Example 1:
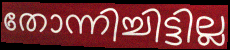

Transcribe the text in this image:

തോന്നിച്ചിട്ടില്ല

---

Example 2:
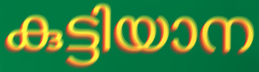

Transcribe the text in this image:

കുട്ടിയാന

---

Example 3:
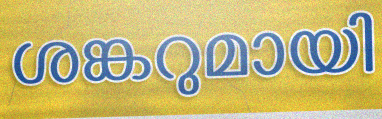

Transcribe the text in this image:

ശങ്കറുമായി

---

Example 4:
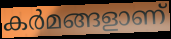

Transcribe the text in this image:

കർമങ്ങളാണ്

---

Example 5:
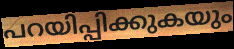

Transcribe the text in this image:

പറയിപ്പിക്കുകയും